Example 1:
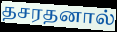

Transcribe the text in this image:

தசரதனால்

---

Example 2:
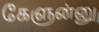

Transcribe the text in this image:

கேளுன்னு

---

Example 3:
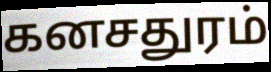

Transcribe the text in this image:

கனசதுரம்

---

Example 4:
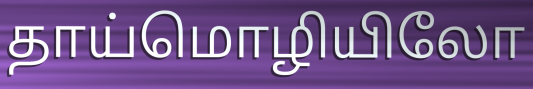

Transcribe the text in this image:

தாய்மொழியிலோ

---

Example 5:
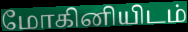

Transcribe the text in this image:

மோகினியிடம்